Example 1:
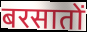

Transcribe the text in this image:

बरसातों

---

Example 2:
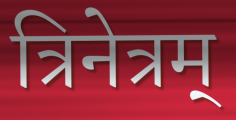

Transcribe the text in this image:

त्रिनेत्रम्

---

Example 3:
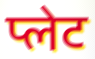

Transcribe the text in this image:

प्लेट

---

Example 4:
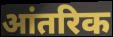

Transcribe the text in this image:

आंतरिक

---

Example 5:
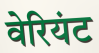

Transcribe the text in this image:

वेरियंट